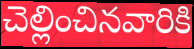
చెల్లించినవారికి